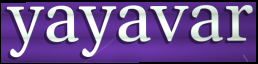
yayavar